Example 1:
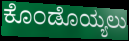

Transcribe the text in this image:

ಕೊಂಡೊಯ್ಯಲು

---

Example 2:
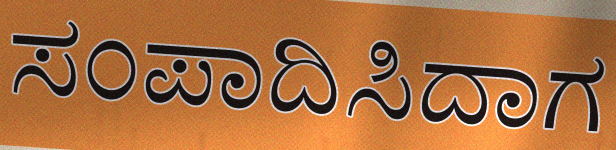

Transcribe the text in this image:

ಸಂಪಾದಿಸಿದಾಗ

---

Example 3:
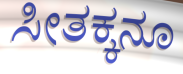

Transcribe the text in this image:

ಸೀತಕ್ಕನೂ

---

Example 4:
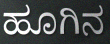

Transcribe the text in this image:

ಹೂಗಿನ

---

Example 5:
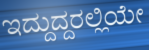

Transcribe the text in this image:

ಇದ್ದುದ್ದರಲ್ಲಿಯೇ